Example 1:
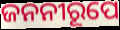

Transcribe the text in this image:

ଜନନୀରୂପେ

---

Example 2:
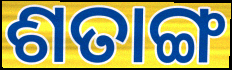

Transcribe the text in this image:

ଶତାଙ୍ଗ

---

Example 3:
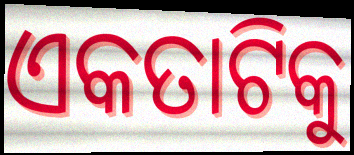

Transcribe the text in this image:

ଏକତାଟିକୁ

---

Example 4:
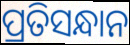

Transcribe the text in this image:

ପ୍ରତିସନ୍ଧାନ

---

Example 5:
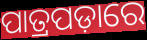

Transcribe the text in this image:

ପାତ୍ରପଡ଼ାରେ